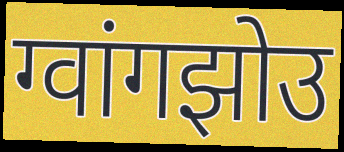
ग्वांगझोउ